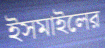
ইসমাইলের